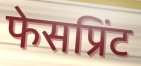
फेसप्रिंट